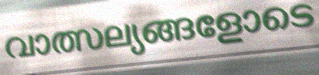
വാത്സല്യങ്ങളോടെ